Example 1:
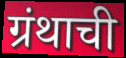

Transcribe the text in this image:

ग्रंथाची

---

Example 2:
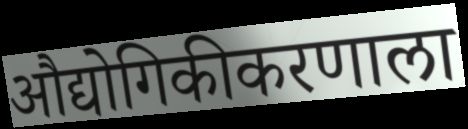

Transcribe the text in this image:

औद्योगिकीकरणाला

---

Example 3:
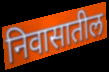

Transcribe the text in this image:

निवासातील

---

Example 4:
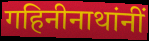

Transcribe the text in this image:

गहिनीनाथांनीं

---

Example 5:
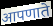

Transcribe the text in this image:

आपणाते